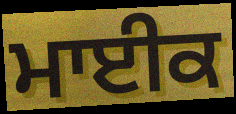
ਮਾਈਕ